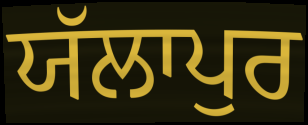
ਯੱਲਾਪੁਰ